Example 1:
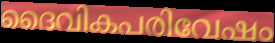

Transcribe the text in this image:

ദൈവികപരിവേഷം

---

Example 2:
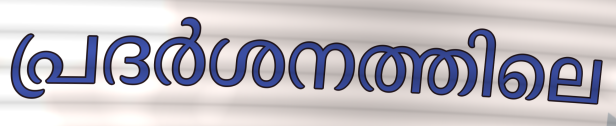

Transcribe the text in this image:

പ്രദർശനത്തിലെ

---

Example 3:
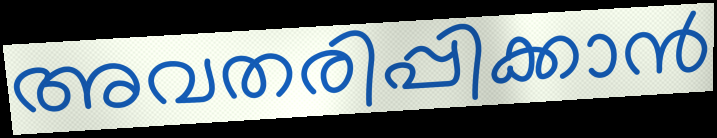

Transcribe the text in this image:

അവതരിപ്പിക്കാൻ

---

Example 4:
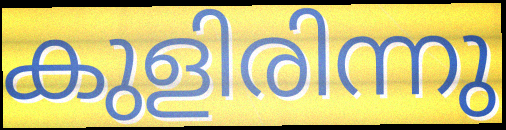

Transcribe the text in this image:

കുളിരിന്നു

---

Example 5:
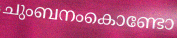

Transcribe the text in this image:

ചുംബനംകൊണ്ടോ